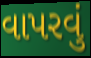
વાપરવું